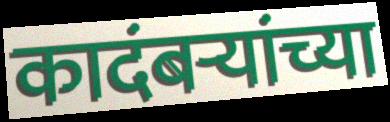
कादंबऱ्यांच्या